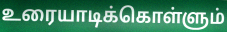
உரையாடிக்கொள்ளும்